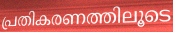
പ്രതികരണത്തിലൂടെ